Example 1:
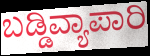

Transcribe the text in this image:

ಬಡ್ಡಿವ್ಯಾಪಾರಿ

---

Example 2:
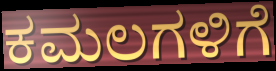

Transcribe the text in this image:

ಕಮಲಗಳಿಗೆ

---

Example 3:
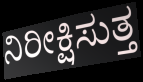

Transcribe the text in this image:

ನಿರೀಕ್ಷಿಸುತ್ತ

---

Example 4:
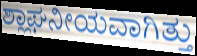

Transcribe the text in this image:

ಶ್ಲಾಘನೀಯವಾಗಿತ್ತು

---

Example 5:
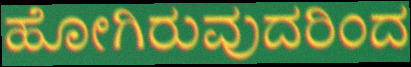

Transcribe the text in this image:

ಹೋಗಿರುವುದರಿಂದ